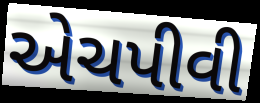
એચપીવી